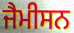
ਜੈਮੀਸਨ